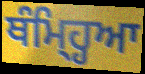
ਥੰਮ੍ਹ੍ਹਿਆ